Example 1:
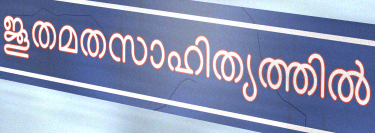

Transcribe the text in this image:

ജൂതമതസാഹിത്യത്തിൽ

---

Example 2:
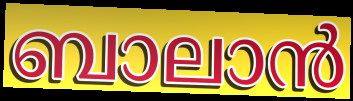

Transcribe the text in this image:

ബാലാൻ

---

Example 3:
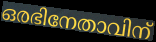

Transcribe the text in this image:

ഒരഭിനേതാവിന്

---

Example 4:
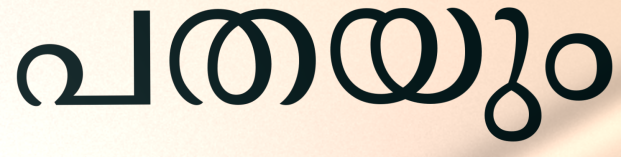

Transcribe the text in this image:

പതയും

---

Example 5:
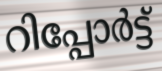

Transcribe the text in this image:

റിപ്പോർട്ട്